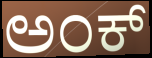
ಅಂಕ್